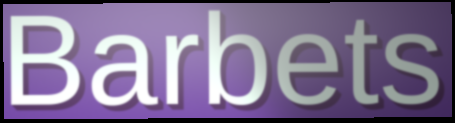
Barbets